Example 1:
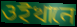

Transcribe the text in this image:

ওইখানে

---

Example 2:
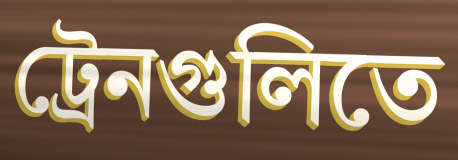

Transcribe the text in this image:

ট্রেনগুলিতে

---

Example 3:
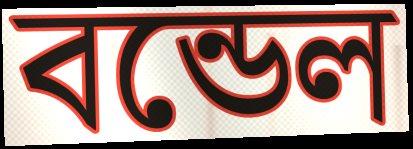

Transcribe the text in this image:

বন্ডেল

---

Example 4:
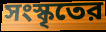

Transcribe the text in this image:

সংস্কৃতের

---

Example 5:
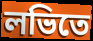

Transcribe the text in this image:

লভিতে